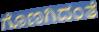
ಗೊಣಗಿದಂತೆ